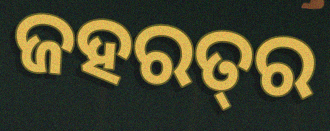
ଜହରତ୍‌ର